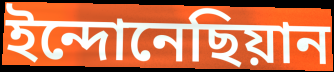
ইন্দোনেছিয়ান